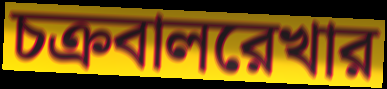
চক্রবালরেখার